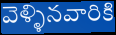
వెళ్ళినవారికి